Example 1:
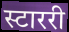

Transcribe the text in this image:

स्टाररी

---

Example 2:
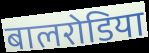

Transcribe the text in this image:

बालरोडिया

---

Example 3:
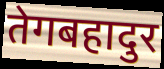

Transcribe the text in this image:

तेगबहादुर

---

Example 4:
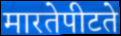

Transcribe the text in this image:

मारतेपीटते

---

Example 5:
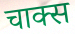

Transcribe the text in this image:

चाक्स